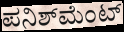
ಪನಿಶ್‌ಮೆಂಟ್